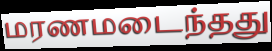
மரணமடைந்தது